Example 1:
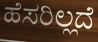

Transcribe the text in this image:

ಹೆಸರಿಲ್ಲದೆ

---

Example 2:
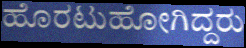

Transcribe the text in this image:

ಹೊರಟುಹೋಗಿದ್ದರು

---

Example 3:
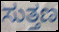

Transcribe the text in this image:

ಸುತ್ತಣ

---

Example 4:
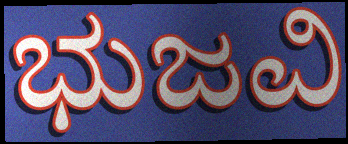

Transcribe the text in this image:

ಭುಜವಿ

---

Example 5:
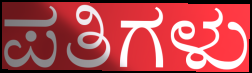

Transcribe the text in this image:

ಪತಿಗಳು